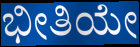
ಭೀತಿಯೇ